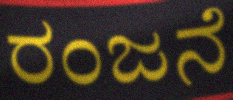
ರಂಜನೆ